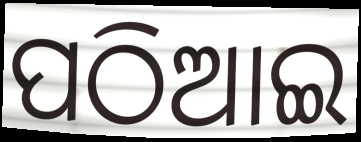
ପଠିଆଇ